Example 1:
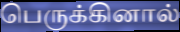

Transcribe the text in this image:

பெருக்கினால்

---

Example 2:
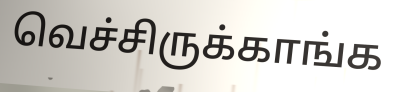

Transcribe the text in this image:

வெச்சிருக்காங்க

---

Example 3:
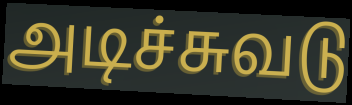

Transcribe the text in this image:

அடிச்சுவடு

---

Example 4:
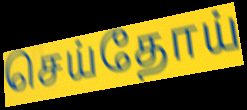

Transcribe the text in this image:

செய்தோய்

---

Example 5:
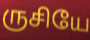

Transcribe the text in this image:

ருசியே